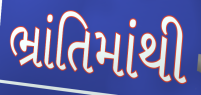
ભ્રાંતિમાંથી